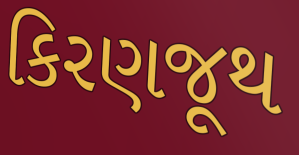
કિરણજૂથ